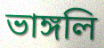
ভাঙ্গলি